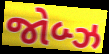
જોબ્ઝ